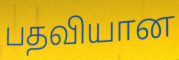
பதவியான